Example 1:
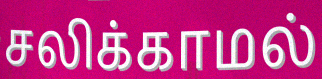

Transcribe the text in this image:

சலிக்காமல்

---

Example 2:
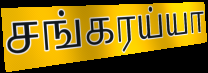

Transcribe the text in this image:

சங்கரய்யா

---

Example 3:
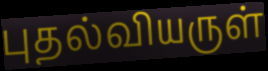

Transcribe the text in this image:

புதல்வியருள்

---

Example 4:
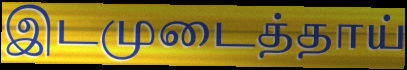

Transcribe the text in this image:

இடமுடைத்தாய்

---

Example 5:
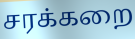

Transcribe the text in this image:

சரக்கறை